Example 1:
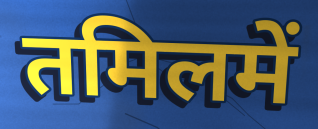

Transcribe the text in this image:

तमिलमें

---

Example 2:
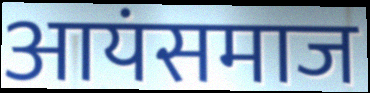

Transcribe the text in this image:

आयंसमाज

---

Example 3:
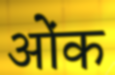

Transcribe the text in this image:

ओंक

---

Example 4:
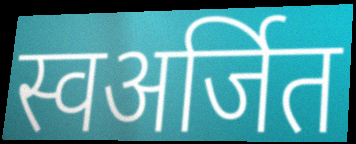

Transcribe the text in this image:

स्वअर्जित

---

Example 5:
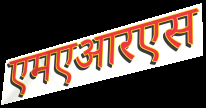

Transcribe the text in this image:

एमएआरएस